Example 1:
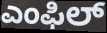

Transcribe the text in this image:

ಎಂಫಿಲ್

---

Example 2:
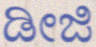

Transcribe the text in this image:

ಡೀಜಿ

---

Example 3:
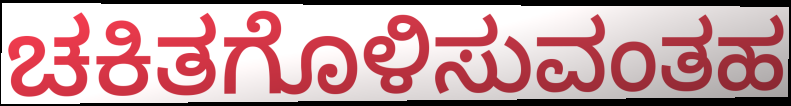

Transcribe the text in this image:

ಚಕಿತಗೊಳಿಸುವಂತಹ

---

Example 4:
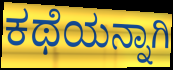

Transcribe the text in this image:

ಕಥೆಯನ್ನಾಗಿ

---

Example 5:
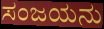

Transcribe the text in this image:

ಸಂಜಯನು